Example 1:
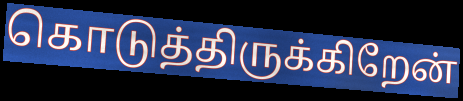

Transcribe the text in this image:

கொடுத்திருக்கிறேன்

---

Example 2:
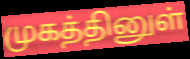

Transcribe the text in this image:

முகத்தினுள்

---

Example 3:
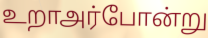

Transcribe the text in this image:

உறாஅர்போன்று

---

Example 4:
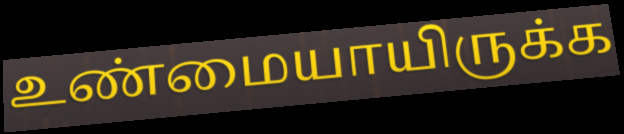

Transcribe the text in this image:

உண்மையாயிருக்க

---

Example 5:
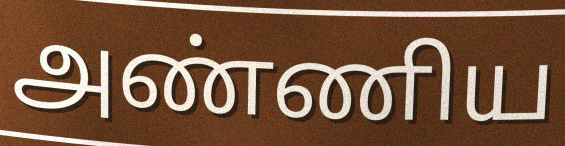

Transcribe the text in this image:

அண்ணிய